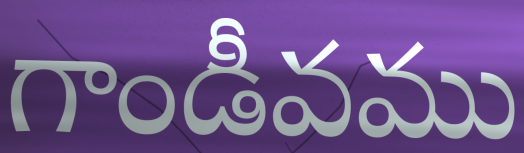
గాండీవము